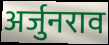
अर्जुनराव